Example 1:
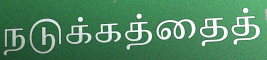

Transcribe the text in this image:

நடுக்கத்தைத்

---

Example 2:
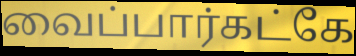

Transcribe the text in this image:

வைப்பார்கட்கே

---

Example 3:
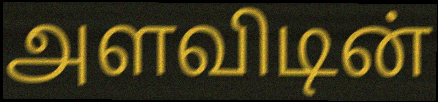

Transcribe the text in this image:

அளவிடின்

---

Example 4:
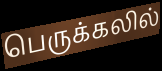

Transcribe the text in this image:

பெருக்கலில்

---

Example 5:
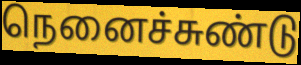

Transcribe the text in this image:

நெனைச்சுண்டு